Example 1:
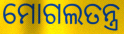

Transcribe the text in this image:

ମୋଗଲତନ୍ତ୍ର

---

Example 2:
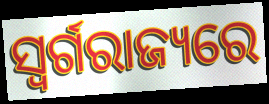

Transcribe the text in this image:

ସ୍ୱର୍ଗରାଜ୍ୟରେ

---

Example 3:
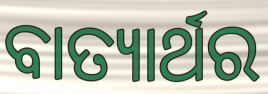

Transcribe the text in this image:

ବାତ୍ୟାର୍ଥର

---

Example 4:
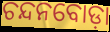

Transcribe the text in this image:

ଚନ୍ଦନବୋଡ଼ା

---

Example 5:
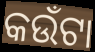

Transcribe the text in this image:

କଉଁଟା